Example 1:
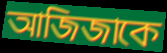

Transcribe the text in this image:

আজিজাকে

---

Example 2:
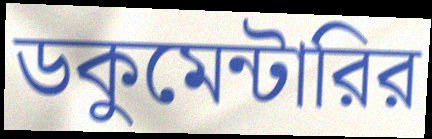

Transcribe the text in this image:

ডকুমেন্টারির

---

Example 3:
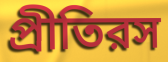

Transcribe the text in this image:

প্রীতিরস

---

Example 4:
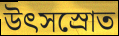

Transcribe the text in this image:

উৎসস্রোত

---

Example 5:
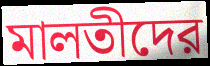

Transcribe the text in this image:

মালতীদের